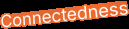
Connectedness